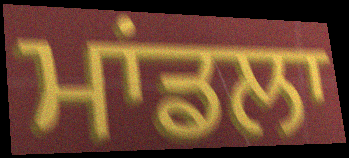
ਮਾਂਡਲਾ